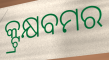
କ୍ଟ୍ରକ୍ଷବମର